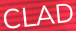
CLAD